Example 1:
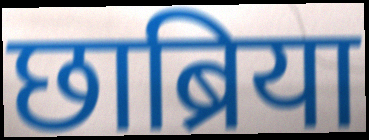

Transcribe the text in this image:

छाब्रिया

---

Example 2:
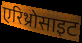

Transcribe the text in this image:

एरिथ्रोसाइट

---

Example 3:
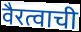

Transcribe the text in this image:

वैरत्वाची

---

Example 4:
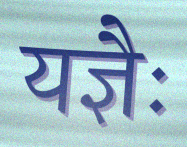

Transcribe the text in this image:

यज्ञैः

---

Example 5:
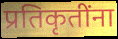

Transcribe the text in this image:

प्रतिकृतींना